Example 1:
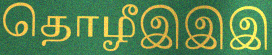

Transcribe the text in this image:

தொழீஇஇஇ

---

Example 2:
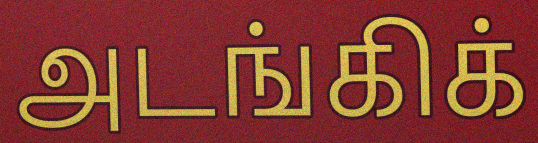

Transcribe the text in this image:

அடங்கிக்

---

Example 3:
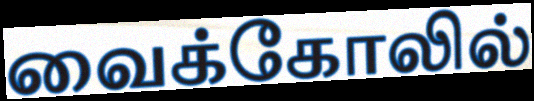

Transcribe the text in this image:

வைக்கோலில்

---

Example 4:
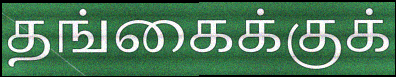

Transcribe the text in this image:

தங்கைக்குக்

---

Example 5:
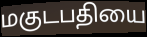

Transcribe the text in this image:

மகுடபதியை